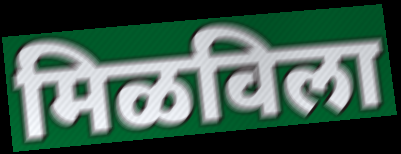
मिळविला